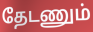
தேடணும்